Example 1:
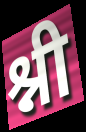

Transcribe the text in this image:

श्नी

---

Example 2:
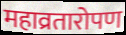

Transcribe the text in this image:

महाव्रतारोपण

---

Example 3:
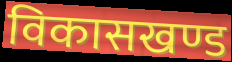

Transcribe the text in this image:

विकासखण्ड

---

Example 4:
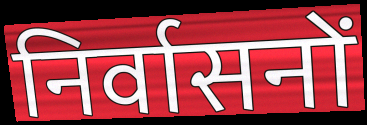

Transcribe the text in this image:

निर्वासनों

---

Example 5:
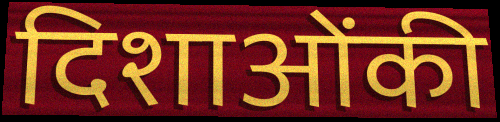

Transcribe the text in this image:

दिशाओंकी